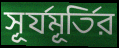
সূর্যমূর্তির